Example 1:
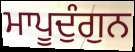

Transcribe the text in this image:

ਮਾਪੂਦੁੰਗੁਨ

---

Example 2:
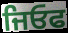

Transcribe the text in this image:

ਜਿਓਫ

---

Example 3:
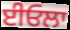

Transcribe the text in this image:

ਈਓਲਾ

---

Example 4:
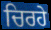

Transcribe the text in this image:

ਚਿਰਹੇ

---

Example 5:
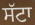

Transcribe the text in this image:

ਸੱਟਾ